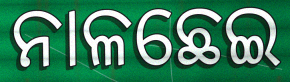
ନାଳଛେଇ